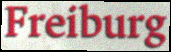
Freiburg